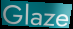
Glaze